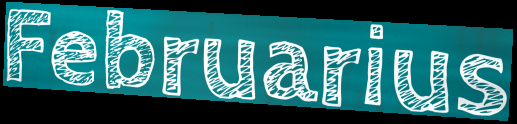
Februarius